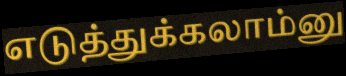
எடுத்துக்கலாம்னு